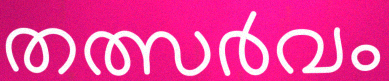
തത്സർവം